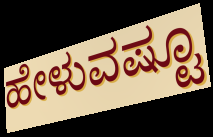
ಹೇಳುವಷ್ಟೂ